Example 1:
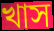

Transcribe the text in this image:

খাস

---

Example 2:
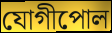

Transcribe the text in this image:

যোগীপোল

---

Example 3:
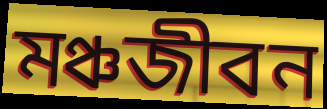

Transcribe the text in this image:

মঞ্চজীবন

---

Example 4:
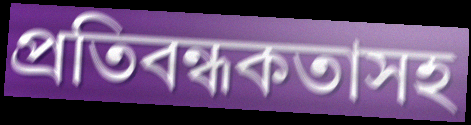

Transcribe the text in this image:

প্রতিবন্ধকতাসহ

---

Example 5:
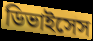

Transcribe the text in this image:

ডিভাইসেস